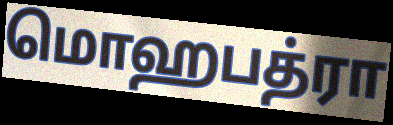
மொஹபத்ரா